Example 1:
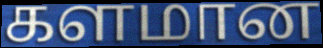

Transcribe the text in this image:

களமான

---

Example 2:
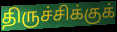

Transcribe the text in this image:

திருச்சிக்குக்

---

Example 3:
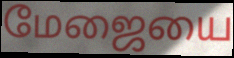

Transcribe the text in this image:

மேஜையை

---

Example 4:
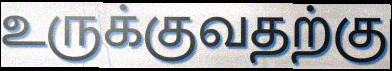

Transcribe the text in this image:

உருக்குவதற்கு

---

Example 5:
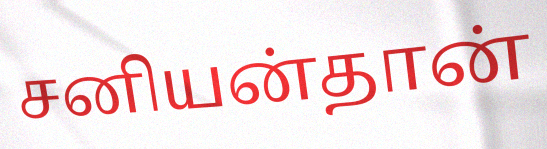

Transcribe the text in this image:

சனியன்தான்